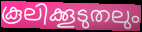
കൂലിക്കൂടുതലും